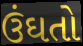
ઉંઘતો